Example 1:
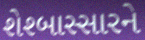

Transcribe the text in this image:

શેશ્બાસ્સારને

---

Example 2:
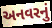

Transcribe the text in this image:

અનવરનું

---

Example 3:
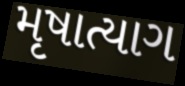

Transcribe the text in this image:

મૃષાત્યાગ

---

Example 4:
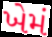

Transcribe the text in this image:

ખેમં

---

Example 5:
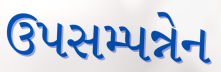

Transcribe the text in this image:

ઉપસમ્પન્નેન